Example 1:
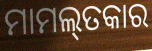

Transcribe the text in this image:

ମାମଲ୍‌ତକାର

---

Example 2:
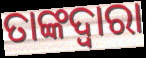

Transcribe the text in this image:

ତାଙ୍କଦ୍ୱାରା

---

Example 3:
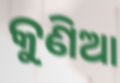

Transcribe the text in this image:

କୁଣିଆ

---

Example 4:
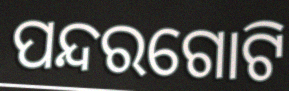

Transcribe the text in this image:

ପନ୍ଦରଗୋଟି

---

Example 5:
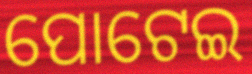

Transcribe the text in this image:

ପୋଟେଇ